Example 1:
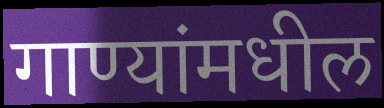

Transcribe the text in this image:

गाण्यांमधील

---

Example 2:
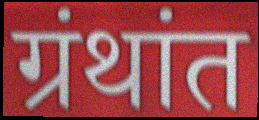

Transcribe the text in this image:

ग्रंथांत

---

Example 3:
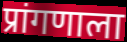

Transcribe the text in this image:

प्रांगणाला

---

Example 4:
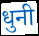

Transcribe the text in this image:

धुनी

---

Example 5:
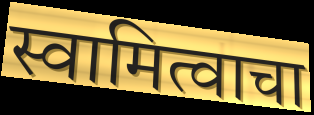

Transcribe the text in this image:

स्वामित्वाचा